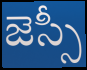
జెస్సీ